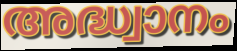
അദ്ധ്വാനം